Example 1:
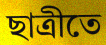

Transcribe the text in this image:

ছাত্রীতে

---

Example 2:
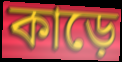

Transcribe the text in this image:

কাড়ে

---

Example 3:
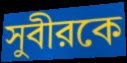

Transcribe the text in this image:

সুবীরকে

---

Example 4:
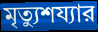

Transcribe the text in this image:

মৃত্যুশয্যার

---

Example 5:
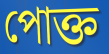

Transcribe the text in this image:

পোক্ত